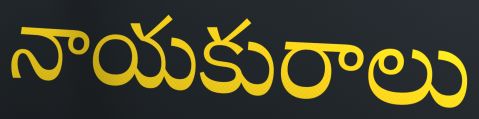
నాయకురాలు